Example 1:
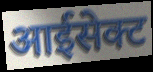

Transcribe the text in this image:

आईसेक्ट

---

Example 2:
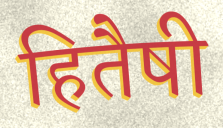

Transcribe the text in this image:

हितैषी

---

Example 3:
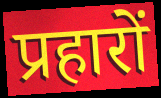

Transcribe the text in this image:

प्रहारों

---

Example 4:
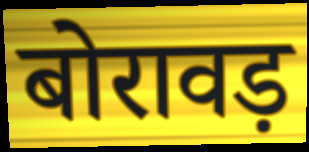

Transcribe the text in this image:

बोरावड़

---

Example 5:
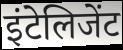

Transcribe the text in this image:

इंटेलिजेंट